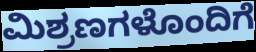
ಮಿಶ್ರಣಗಳೊಂದಿಗೆ